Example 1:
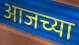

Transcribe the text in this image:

आजच्या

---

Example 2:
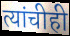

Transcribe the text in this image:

त्यांचीही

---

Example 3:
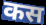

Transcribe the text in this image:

कस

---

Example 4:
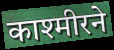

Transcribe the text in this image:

काश्मीरने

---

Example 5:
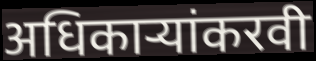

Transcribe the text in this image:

अधिकाऱ्यांकरवी